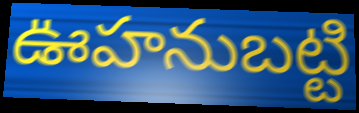
ఊహనుబట్టి